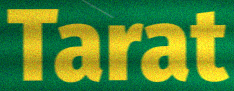
Tarat